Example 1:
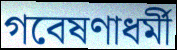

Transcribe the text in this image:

গবেষণাধর্মী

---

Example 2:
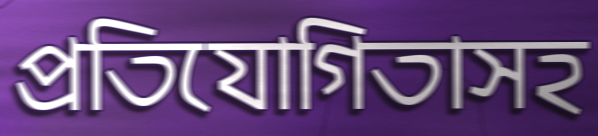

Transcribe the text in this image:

প্রতিযোগিতাসহ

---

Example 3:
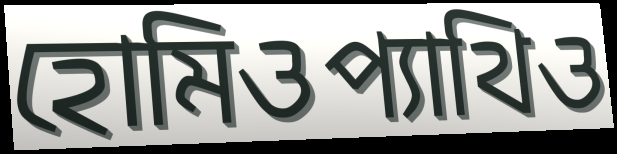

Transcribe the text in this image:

হোমিওপ্যাথিও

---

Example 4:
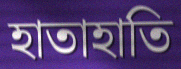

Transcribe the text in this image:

হাতাহাতি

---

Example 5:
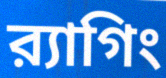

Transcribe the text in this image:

র‍্যাগিং